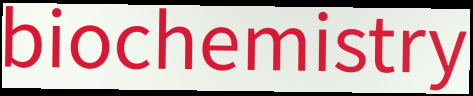
biochemistry